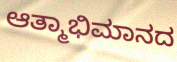
ಆತ್ಮಾಭಿಮಾನದ